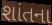
શાંતના